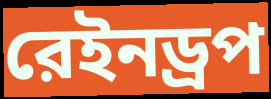
রেইনড্রপ